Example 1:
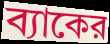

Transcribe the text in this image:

ব্যাকের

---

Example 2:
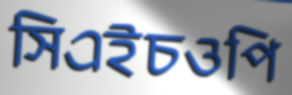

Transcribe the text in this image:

সিএইচওপি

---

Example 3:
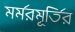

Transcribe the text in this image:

মর্মরমূর্তির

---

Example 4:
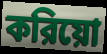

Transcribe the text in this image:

করিয়ো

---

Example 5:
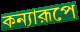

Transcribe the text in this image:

কন্যারূপে